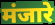
मंजारे